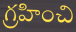
గ్రహించి